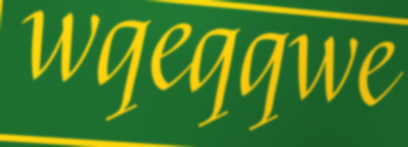
wqeqqwe